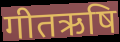
गीतऋषि